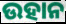
ଉହାନ